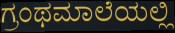
ಗ್ರಂಥಮಾಲೆಯಲ್ಲಿ